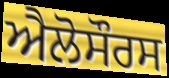
ਐਲੋਸੌਰਸ